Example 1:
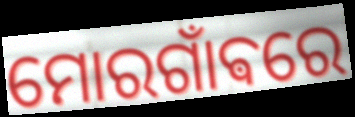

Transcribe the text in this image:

ମୋରଗାଁଵରେ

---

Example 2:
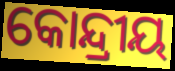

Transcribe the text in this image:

କୋନ୍ଦ୍ରୀୟ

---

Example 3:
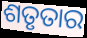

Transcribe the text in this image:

ଶତୃତାର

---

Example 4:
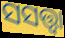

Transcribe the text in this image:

ସସତ୍ତ୍ୱା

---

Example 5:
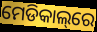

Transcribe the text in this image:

ମେଡିକାଲ୍‌ରେ